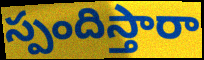
స్పందిస్తారా